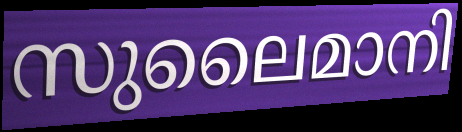
സുലൈമാനി